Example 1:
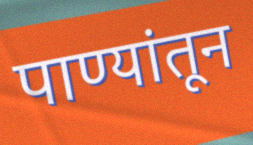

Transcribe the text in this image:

पाण्यांतून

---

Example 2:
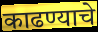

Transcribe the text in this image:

काढण्याचे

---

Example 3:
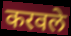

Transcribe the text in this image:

करवले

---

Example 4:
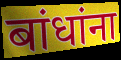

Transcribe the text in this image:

बांधांना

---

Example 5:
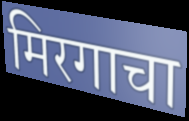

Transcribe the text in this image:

मिरगाचा